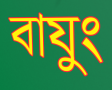
বাযুং